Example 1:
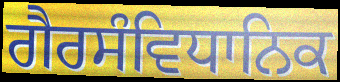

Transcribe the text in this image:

ਗੈਰਸੰਵਿਧਾਨਿਕ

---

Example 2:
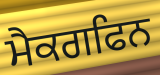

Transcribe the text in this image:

ਮੈਕਗਫਿਨ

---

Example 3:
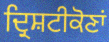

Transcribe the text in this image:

ਦ੍ਰਿਸ਼ਟੀਕੋਣਾਂ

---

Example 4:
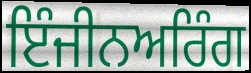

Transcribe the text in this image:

ਇੰਜੀਨਅਰਿੰਗ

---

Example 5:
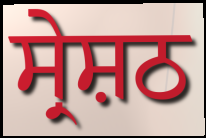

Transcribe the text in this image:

ਸ੍ਰੇਸ਼ਠ